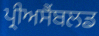
ਪ੍ਰੀਅਸੈਂਬਲਡ